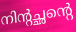
നിന്റച്ഛന്റെ